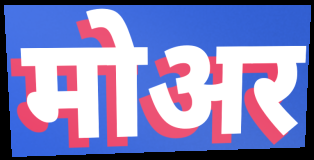
मोअर